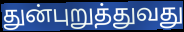
துன்புறுத்துவது